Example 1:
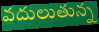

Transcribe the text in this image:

వదులుతున్న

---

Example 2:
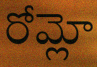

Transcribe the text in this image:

రోమ్లో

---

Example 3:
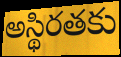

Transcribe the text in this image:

అస్థిరతకు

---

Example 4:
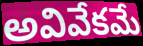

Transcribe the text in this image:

అవివేకమే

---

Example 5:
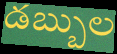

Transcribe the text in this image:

డబ్బుల